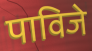
पाविजे